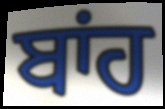
ਬਾਂਹ